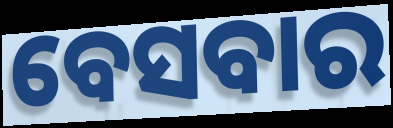
ବେସବାର